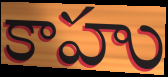
కాహు